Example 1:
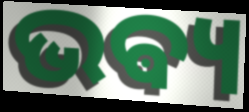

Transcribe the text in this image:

ଭଵ୍ୟ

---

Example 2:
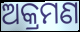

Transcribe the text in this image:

ଅକ୍ରମଣ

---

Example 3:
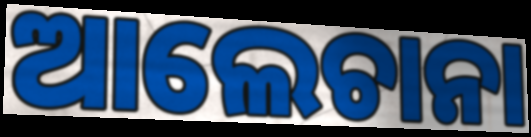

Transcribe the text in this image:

ଆଲେଚାନା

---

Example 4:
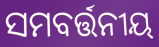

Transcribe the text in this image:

ସମବର୍ତ୍ତନୀୟ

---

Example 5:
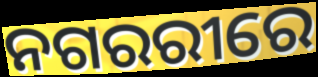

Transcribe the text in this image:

ନଗରରୀରେ